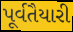
પૂર્વતૈયારી